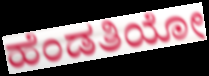
ಹೆಂಡತಿಯೋ